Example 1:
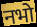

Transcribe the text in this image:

नभो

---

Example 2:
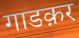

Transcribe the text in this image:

गाडक़र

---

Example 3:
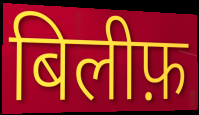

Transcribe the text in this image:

बिलीफ़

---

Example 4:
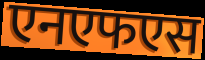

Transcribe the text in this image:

एनएफएस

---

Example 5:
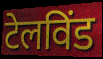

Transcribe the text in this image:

टेलविंड